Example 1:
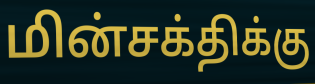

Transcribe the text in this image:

மின்சக்திக்கு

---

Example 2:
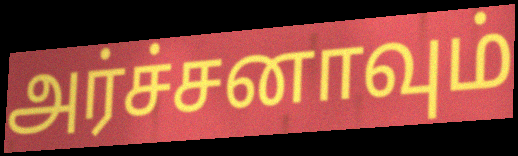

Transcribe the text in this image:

அர்ச்சனாவும்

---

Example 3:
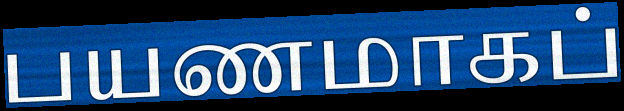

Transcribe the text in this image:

பயணமாகப்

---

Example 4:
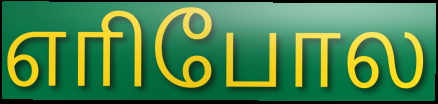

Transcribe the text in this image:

எரிபோல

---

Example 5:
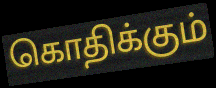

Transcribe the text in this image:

கொதிக்கும்